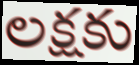
లక్షకు